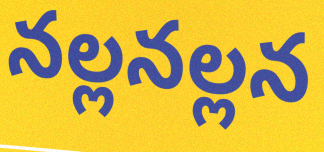
నల్లనల్లన